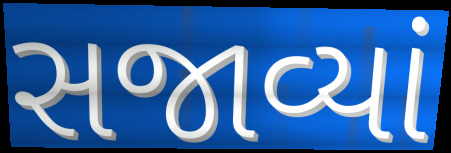
સજાવ્યાં